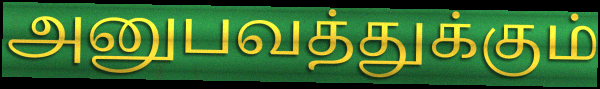
அனுபவத்துக்கும்